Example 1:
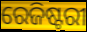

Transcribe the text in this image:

ରେଜିଷ୍ଟରୀ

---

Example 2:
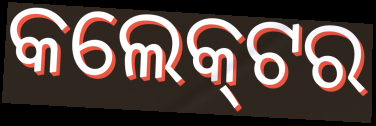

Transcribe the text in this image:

କଲେକ୍‌ଟର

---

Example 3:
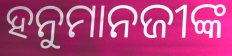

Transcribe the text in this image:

ହନୁମାନଜୀଙ୍କ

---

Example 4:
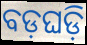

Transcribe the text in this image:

ବଡ଼ଘଡ଼ି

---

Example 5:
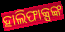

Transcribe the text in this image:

ହାଲିଫାକ୍ସଙ୍କ